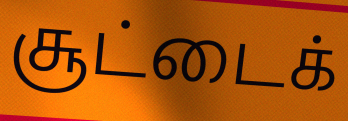
சூட்டைக்